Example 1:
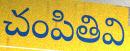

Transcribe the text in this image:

చంపితివి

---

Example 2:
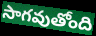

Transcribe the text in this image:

సాగవుతోంది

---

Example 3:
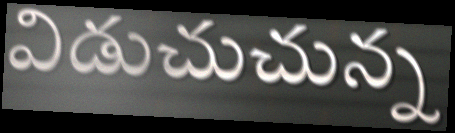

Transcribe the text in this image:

విడుచుచున్న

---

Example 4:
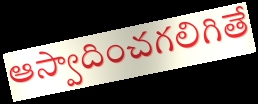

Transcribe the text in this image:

ఆస్వాదించగలిగితే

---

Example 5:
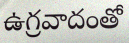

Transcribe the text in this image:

ఉగ్రవాదంతో